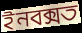
ইনবক্সত